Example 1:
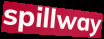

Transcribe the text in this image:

spillway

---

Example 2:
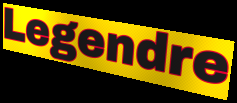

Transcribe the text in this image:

Legendre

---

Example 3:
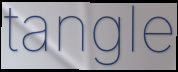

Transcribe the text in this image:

tangle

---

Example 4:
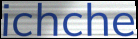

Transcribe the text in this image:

ichche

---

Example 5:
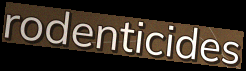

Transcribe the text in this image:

rodenticides